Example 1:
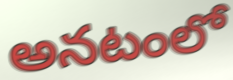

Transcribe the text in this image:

అనటంలో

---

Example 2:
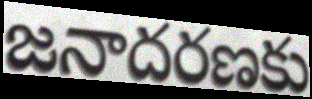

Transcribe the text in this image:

జనాదరణకు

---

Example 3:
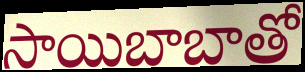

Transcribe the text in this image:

సాయిబాబాతో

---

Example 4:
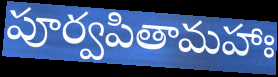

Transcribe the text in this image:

పూర్వపితామహాః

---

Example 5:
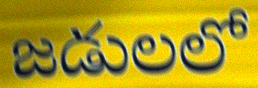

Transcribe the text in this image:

జడులలో